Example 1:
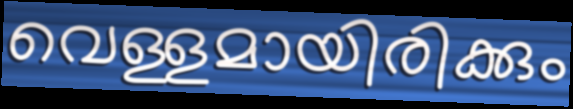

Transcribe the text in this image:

വെള്ളമായിരിക്കും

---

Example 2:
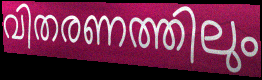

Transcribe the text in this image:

വിതരണത്തിലും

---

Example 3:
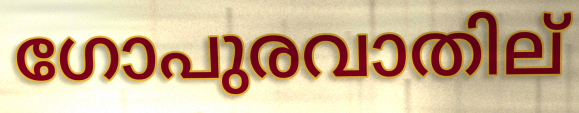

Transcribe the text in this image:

ഗോപുരവാതില്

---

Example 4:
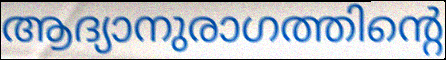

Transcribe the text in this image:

ആദ്യാനുരാഗത്തിന്റെ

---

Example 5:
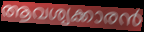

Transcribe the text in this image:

ആവശ്യക്കാരൻ